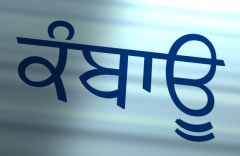
ਕੰਬਾਊੁ